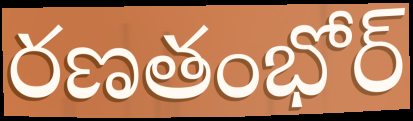
రణతంభోర్